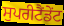
ਸੁਪਰੀਟੈਂਡੇਂਟ